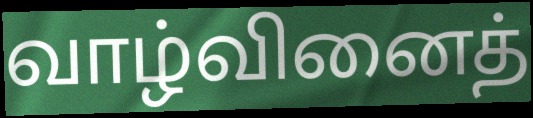
வாழ்வினைத்